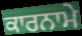
ਕਾਰਨਾਮੇ